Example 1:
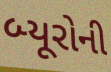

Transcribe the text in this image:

બ્યૂરોની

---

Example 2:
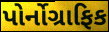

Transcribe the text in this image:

પોર્નોગ્રાફિક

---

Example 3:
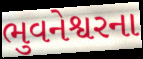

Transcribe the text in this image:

ભુવનેશ્વરના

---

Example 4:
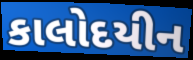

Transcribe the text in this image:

કાલોદયીન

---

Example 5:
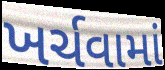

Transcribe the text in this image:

ખર્ચવામાં